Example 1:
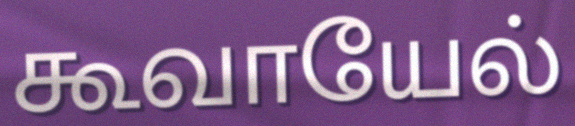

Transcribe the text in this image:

கூவாயேல்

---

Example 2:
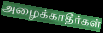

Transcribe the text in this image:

அழைக்காதீர்கள்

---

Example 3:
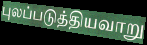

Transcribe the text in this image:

புலப்படுத்தியவாறு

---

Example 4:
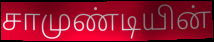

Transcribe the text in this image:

சாமுண்டியின்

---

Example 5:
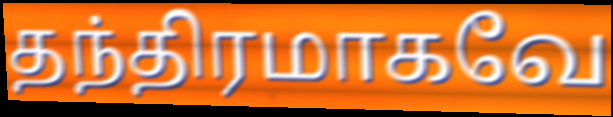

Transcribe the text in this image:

தந்திரமாகவே